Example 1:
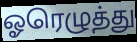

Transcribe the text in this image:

ஓரெழுத்து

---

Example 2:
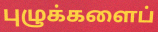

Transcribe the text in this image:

புழுக்களைப்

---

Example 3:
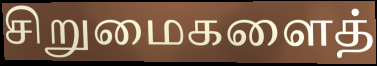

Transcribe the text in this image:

சிறுமைகளைத்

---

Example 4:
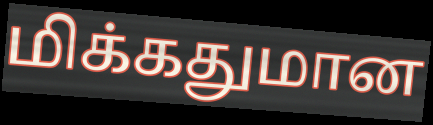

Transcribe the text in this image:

மிக்கதுமான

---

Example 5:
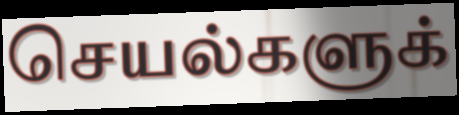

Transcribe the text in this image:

செயல்களுக்